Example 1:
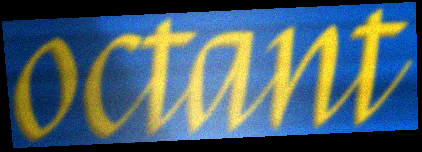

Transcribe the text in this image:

octant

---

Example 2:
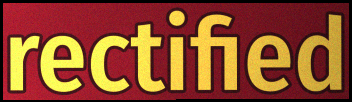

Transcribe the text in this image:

rectified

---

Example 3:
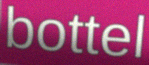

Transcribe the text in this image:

bottel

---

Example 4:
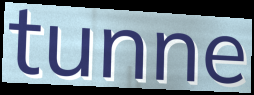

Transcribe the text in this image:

tunne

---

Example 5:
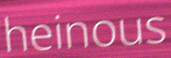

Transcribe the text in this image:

heinous